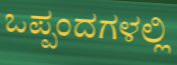
ಒಪ್ಪಂದಗಳಲ್ಲಿ